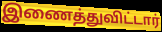
இணைத்துவிட்டார்